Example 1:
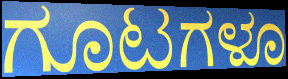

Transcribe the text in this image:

ಗೂಟಗಳೂ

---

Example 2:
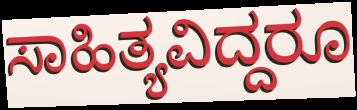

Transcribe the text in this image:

ಸಾಹಿತ್ಯವಿದ್ದರೂ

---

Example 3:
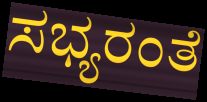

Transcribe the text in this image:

ಸಭ್ಯರಂತೆ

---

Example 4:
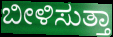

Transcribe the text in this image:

ಬೀಳಿಸುತ್ತಾ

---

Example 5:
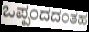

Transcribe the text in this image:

ಒಪ್ಪಂದದಂತಹ